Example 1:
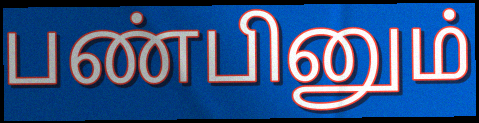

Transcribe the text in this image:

பண்பினும்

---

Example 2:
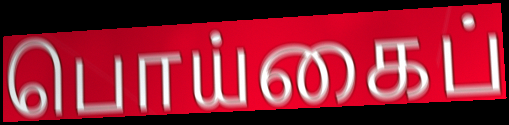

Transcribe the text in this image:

பொய்கைப்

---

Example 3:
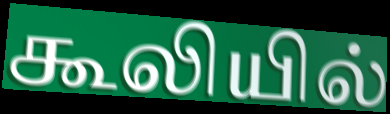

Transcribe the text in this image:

கூலியில்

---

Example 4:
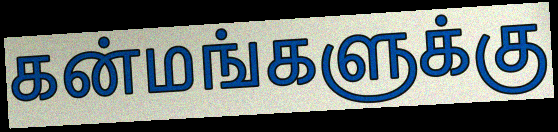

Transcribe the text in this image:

கன்மங்களுக்கு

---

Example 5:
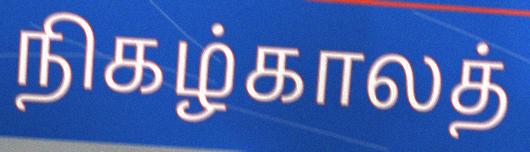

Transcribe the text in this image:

நிகழ்காலத்